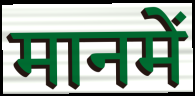
मानमें